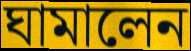
ঘামালেন